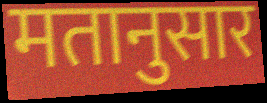
मतानुसार